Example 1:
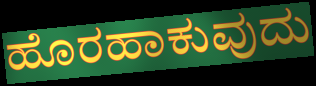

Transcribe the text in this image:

ಹೊರಹಾಕುವುದು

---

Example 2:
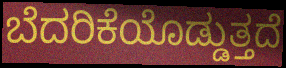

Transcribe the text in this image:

ಬೆದರಿಕೆಯೊಡ್ಡುತ್ತದೆ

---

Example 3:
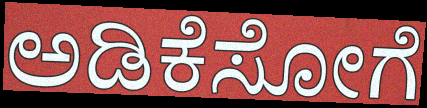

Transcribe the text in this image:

ಅಡಿಕೆಸೋಗೆ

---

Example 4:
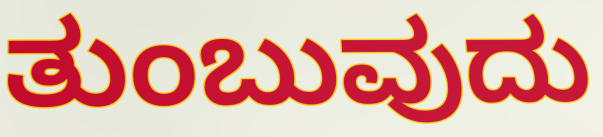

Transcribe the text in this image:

ತುಂಬುವುದು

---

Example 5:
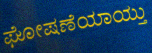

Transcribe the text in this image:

ಘೋಷಣೆಯಾಯ್ತು